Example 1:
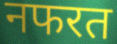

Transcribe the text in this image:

नफरत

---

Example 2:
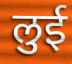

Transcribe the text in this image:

लुई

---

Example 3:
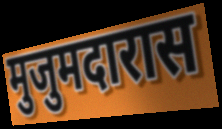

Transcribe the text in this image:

मुजुमदारास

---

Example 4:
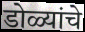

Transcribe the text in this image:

डोळ्यांचे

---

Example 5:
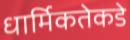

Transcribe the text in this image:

धार्मिकतेकडे